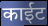
काईट